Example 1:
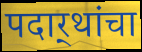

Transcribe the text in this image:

पदार्थांचा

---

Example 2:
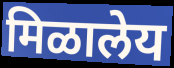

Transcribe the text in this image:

मिळालेय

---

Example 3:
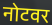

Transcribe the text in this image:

नोटवर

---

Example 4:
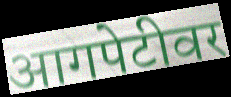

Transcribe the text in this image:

आगपेटीवर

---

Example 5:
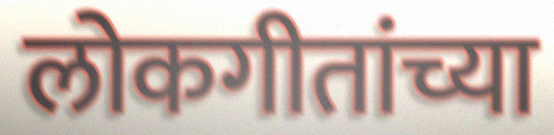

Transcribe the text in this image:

लोकगीतांच्या